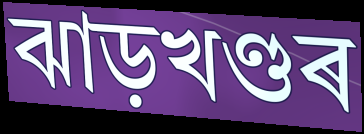
ঝাড়খণ্ডৰ